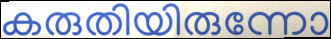
കരുതിയിരുന്നോ